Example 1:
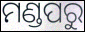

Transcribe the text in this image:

ମଣ୍ଡପରୁ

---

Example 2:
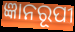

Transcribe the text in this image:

ଜ୍ଞାନରୂପୀ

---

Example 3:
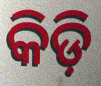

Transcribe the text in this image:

କିଡ଼ି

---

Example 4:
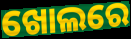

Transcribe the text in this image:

ଖୋଲରେ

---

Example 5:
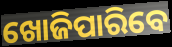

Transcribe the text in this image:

ଖୋଜିପାରିବେ